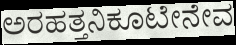
ಅರಹತ್ತನಿಕೂಟೇನೇವ